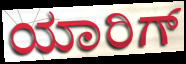
ಯಾರಿಗ್